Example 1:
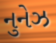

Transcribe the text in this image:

નુનેઝ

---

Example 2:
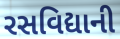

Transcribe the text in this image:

રસવિદ્યાની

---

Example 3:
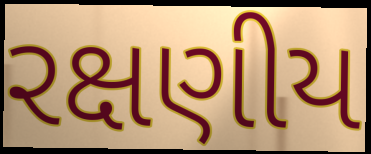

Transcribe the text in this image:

રક્ષણીય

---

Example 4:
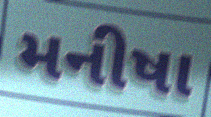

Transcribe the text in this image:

મનીષા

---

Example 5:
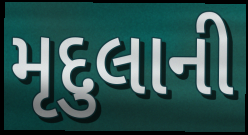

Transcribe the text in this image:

મૃદુલાની